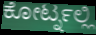
ಕೋರ್ಟ್ನಲ್ಲಿ